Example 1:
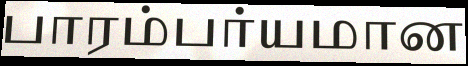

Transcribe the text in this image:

பாரம்பர்யமான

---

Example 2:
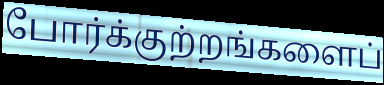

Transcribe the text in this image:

போர்க்குற்றங்களைப்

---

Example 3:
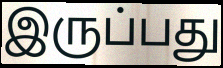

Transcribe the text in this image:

இருப்பது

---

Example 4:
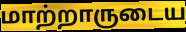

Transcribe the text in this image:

மாற்றாருடைய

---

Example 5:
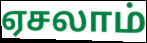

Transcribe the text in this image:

ஏசலாம்